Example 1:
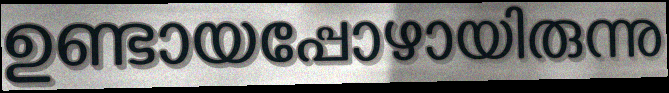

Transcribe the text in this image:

ഉണ്ടായപ്പോഴായിരുന്നു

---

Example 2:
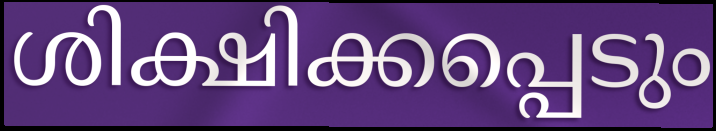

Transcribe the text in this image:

ശിക്ഷിക്കപ്പെടും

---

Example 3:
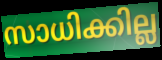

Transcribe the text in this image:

സാധിക്കില്ല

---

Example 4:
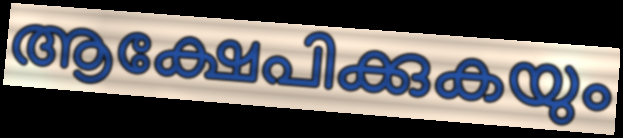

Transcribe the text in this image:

ആക്ഷേപിക്കുകയും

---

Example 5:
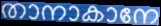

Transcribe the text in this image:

താനാകാനേ